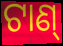
ଟାଣ୍